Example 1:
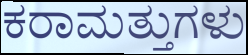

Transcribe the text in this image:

ಕರಾಮತ್ತುಗಳು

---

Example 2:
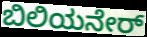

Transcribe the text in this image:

ಬಿಲಿಯನೇರ್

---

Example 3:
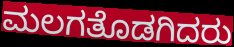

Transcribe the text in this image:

ಮಲಗತೊಡಗಿದರು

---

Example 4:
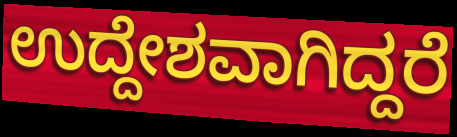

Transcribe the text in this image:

ಉದ್ದೇಶವಾಗಿದ್ದರೆ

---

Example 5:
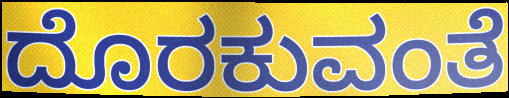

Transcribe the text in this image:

ದೊರಕುವಂತೆ